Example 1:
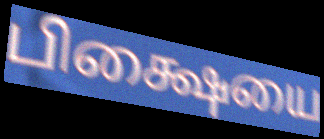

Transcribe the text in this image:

பிக்ஷையை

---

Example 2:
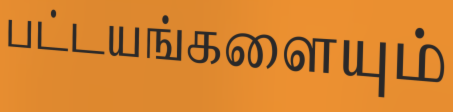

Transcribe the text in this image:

பட்டயங்களையும்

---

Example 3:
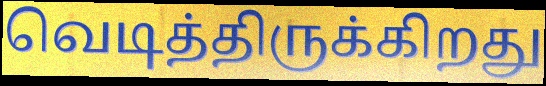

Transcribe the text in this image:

வெடித்திருக்கிறது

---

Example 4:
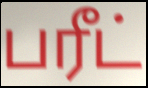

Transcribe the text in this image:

பரீட்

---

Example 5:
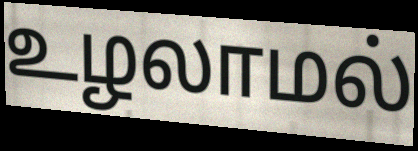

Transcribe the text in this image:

உழலாமல்